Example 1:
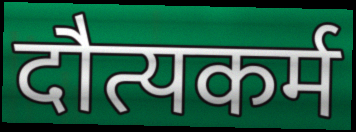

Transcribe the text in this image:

दौत्यकर्म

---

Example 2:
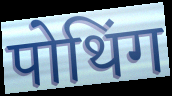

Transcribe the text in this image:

पोथिंग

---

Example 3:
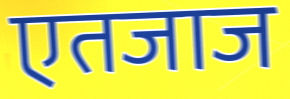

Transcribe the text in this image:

एतजाज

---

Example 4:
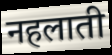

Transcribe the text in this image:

नहलाती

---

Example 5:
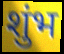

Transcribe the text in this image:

शुंभ